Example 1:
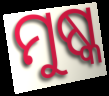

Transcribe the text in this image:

ମୁଷ୍କ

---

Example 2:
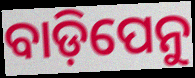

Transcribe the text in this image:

ବାଡ଼ିପେନୁ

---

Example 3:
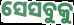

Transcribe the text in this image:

ସେସବୁକୁ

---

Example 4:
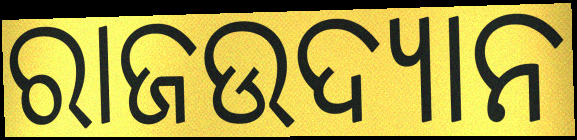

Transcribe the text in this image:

ରାଜଉଦ୍ୟାନ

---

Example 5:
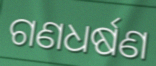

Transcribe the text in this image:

ଗଣଧର୍ଷଣ